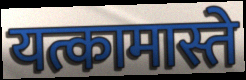
यत्कामास्ते